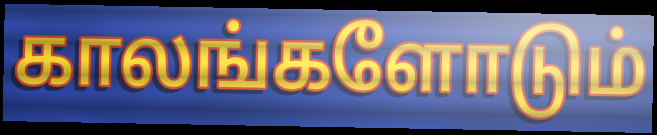
காலங்களோடும்